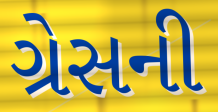
ગ્રેસની